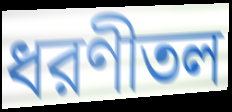
ধরণীতল